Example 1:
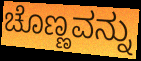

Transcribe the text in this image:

ಚೊಣ್ಣವನ್ನು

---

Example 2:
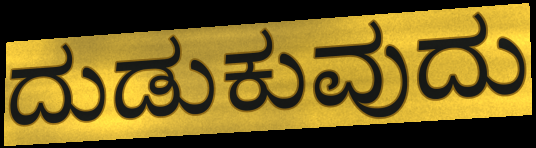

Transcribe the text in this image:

ದುಡುಕುವುದು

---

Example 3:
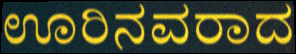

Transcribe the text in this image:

ಊರಿನವರಾದ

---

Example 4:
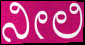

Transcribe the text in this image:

ನೀಲಿ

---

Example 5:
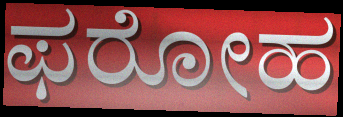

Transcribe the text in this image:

ಫರೋಹ